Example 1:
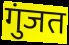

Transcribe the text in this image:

गुंजत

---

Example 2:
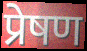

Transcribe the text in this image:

प्रेषण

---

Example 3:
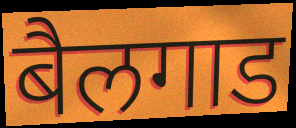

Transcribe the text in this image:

बैलगाड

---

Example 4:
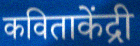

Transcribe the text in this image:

कविताकेंद्री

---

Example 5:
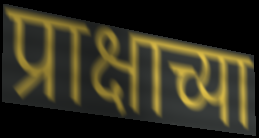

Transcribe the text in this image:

प्राक्षाच्या